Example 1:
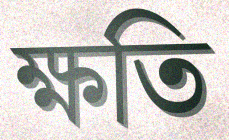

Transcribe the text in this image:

ক্ষতি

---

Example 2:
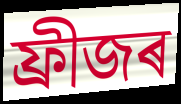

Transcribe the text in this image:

ফ্ৰীজৰ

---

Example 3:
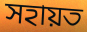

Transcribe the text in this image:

সহায়ত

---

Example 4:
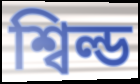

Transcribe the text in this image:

শ্বিল্ড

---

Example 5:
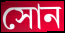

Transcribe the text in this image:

সোন